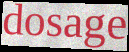
dosage